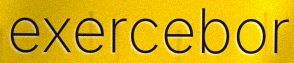
exercebor